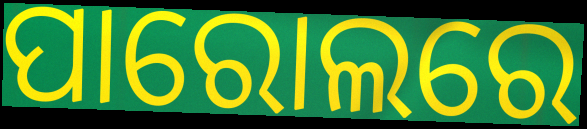
ପାରୋଲରେ